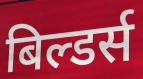
बिल्डर्स